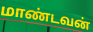
மாண்டவன்